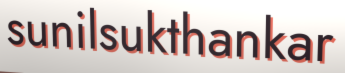
sunilsukthankar